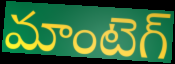
మాంటెగ్